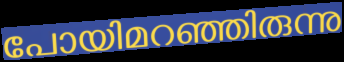
പോയിമറഞ്ഞിരുന്നു